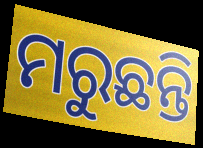
ମରୁଛନ୍ତି